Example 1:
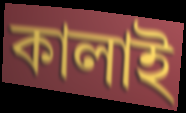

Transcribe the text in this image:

কালাই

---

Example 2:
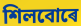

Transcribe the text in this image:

শিলবোৰে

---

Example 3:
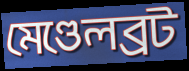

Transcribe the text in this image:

মেণ্ডেলব্ৰট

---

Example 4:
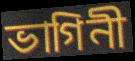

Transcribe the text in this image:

ভাগিনী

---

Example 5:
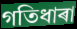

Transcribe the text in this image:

গতিধাৰা